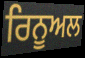
ਰਿਨੂਅਲ